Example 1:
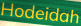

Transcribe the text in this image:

Hodeidah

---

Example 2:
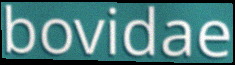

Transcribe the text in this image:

bovidae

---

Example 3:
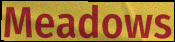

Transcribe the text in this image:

Meadows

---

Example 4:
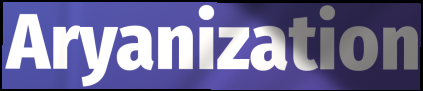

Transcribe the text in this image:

Aryanization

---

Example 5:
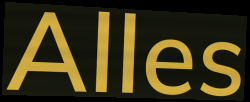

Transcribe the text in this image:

Alles